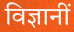
विज्ञानीं